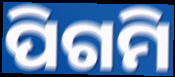
ପିଗମି